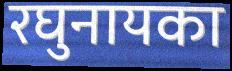
रघुनायका